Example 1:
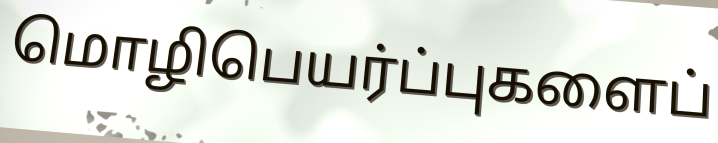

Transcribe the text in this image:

மொழிபெயர்ப்புகளைப்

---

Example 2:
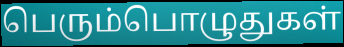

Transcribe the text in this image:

பெரும்பொழுதுகள்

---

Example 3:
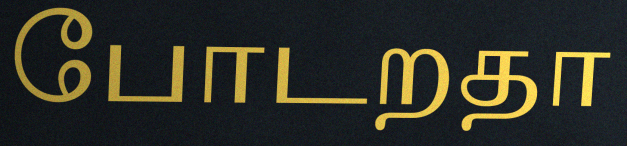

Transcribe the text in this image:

போடறதா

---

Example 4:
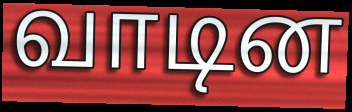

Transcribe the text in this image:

வாடின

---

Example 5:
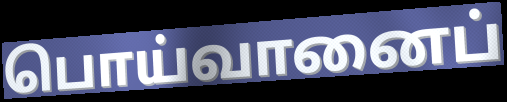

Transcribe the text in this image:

பொய்வானைப்